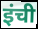
इंची